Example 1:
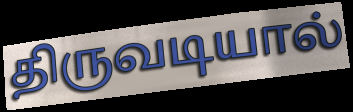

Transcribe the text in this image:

திருவடியால்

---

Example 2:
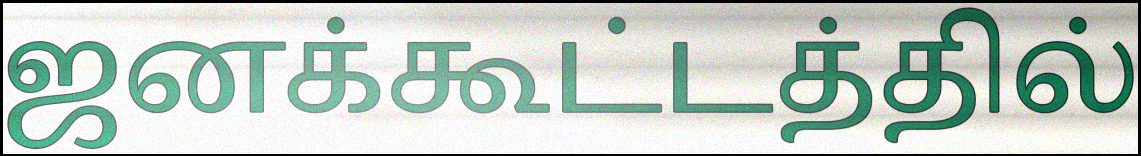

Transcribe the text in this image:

ஜனக்கூட்டத்தில்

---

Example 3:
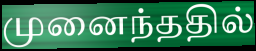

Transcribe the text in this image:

முனைந்ததில்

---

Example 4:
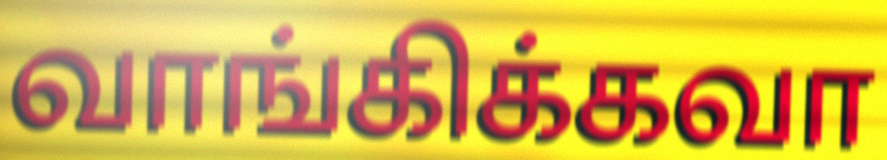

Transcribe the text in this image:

வாங்கிக்கவா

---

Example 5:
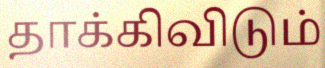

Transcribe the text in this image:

தாக்கிவிடும்